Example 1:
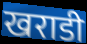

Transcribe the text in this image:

खराडी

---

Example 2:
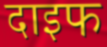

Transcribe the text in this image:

दाइफ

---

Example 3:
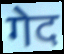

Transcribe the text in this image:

गेद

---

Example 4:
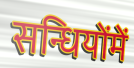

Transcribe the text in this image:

सन्धियोंमें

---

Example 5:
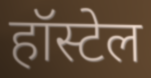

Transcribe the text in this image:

हॉस्टेल